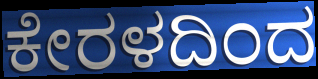
ಕೇರಳದಿಂದ